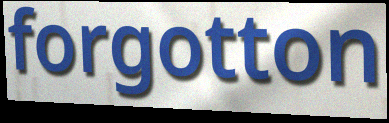
forgotton